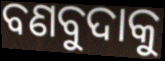
ବଣବୁଦାକୁ